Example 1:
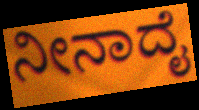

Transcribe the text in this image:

ನೀನಾದೈ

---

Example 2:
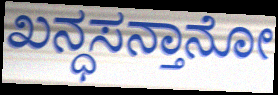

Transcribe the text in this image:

ಖನ್ಧಸನ್ತಾನೋ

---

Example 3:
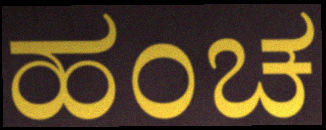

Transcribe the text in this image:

ಹಂಚ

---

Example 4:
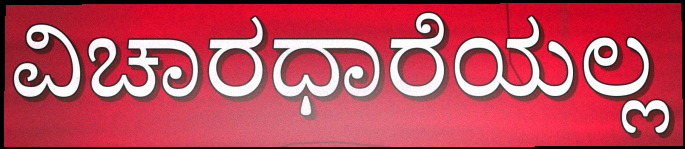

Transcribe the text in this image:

ವಿಚಾರಧಾರೆಯಲ್ಲ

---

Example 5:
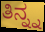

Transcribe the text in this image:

ತಿನ್ನ್ನ